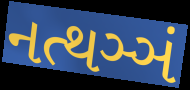
નત્થઞ્ઞં